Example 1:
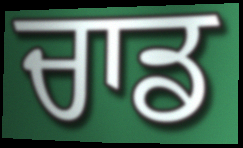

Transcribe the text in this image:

ਚਾਡ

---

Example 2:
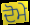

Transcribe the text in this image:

ਦੋਮੇ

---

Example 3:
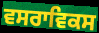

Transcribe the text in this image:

ਵਸਰਾਵਿਕਸ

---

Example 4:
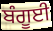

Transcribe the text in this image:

ਬੰਗੂਈ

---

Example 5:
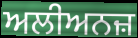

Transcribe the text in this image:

ਅਲੀਅਨਜ਼